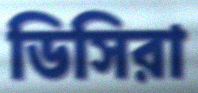
ডিসিরা